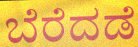
ಬೆರೆದಡೆ